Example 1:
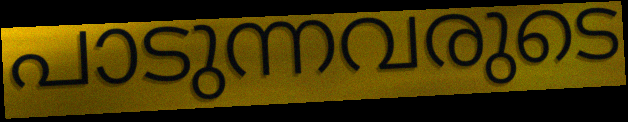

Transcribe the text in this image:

പാടുന്നവരുടെ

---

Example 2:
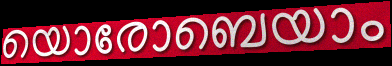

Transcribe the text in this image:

യൊരോബെയാം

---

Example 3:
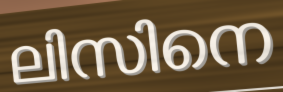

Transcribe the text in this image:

ലിസിനെ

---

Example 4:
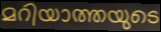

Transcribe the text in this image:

മറിയാത്തയുടെ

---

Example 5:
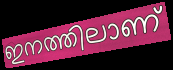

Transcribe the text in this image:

ഇനത്തിലാണ്